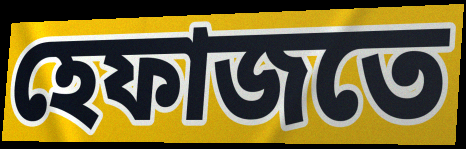
হেফাজতে